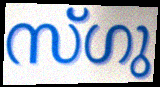
സ്ഗു